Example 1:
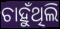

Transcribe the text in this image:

ଚାହୁଁଥିଲି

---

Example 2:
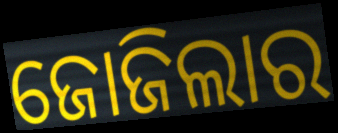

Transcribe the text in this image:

ଜୋଜିଲାର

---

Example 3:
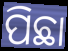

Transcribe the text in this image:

ପିଛା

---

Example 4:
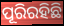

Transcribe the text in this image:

ପୂରିରହିଛି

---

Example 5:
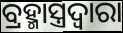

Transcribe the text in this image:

ବ୍ରହ୍ମାସ୍ତ୍ରଦ୍ୱାରା